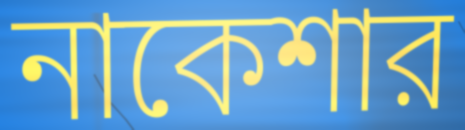
নাকেশার